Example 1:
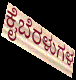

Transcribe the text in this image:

ಕೈಬೆರಳುಗಳ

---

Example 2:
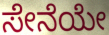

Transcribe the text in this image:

ಸೇನೆಯೇ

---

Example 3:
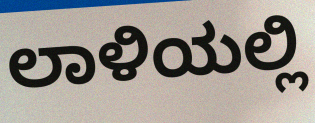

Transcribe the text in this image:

ಲಾಳಿಯಲ್ಲಿ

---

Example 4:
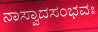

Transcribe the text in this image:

ನಾಸ್ವಾದಸಂಭವಃ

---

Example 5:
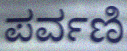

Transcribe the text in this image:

ಪರ್ವಣಿ